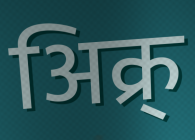
अिक्र्